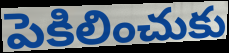
పెకిలించుకు